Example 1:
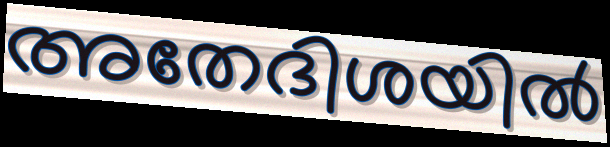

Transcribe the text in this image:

അതേദിശയിൽ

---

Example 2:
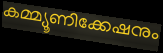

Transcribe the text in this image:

കമ്മ്യൂണിക്കേഷനും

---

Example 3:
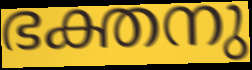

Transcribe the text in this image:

ഭക്തനു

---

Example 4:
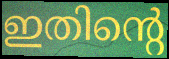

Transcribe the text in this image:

ഇതിന്റെ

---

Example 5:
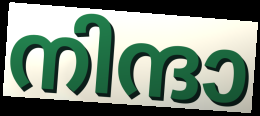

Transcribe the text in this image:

നിന്ദാ